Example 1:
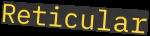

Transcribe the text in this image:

Reticular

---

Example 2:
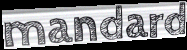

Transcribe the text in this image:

mandard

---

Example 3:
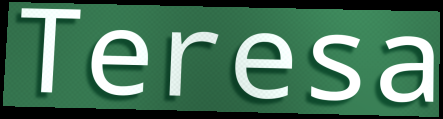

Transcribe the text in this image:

Teresa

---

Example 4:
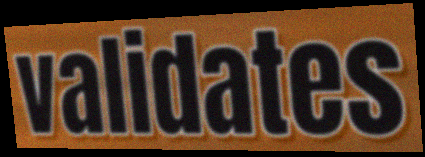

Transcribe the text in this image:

validates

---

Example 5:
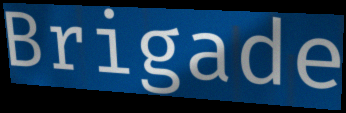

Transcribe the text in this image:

Brigade